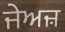
ਜੇਅਜ਼